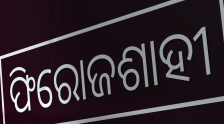
ଫିରୋଜଶାହୀ